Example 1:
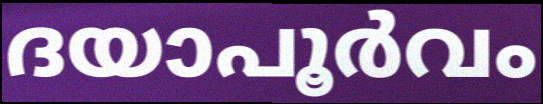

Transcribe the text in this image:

ദയാപൂർവം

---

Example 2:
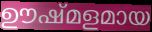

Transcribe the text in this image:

ഊഷ്‌മളമായ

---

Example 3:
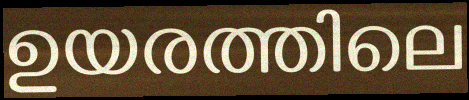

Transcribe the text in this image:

ഉയരത്തിലെ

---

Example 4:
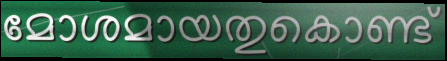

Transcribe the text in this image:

മോശമായതുകൊണ്ട്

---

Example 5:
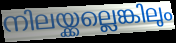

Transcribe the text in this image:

നിലയ്ക്കല്ലെങ്കിലും